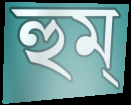
হুম্